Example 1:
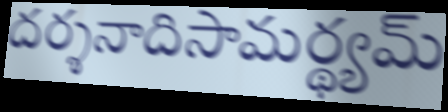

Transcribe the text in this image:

దర్శనాదిసామర్థ్యమ్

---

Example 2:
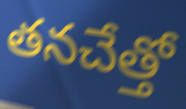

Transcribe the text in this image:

తనచేత్తో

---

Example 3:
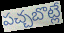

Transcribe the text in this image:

పచ్చబొట్లే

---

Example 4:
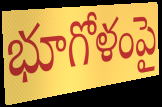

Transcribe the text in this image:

భూగోళంపై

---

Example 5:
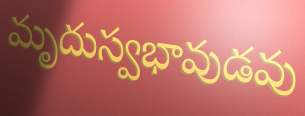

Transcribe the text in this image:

మృదుస్వభావుడవు